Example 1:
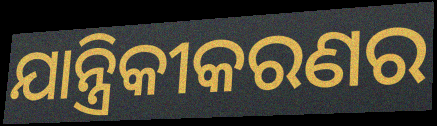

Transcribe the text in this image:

ଯାନ୍ତ୍ରିକୀକରଣର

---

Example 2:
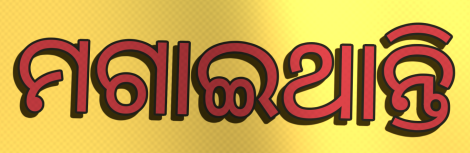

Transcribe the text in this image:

ମଗାଇଥାନ୍ତି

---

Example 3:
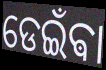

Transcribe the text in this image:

ଡେଇଁଵା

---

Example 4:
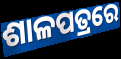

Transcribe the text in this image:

ଶାଳପତ୍ରରେ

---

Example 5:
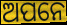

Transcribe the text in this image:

ଅପନେ